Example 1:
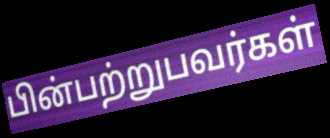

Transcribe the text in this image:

பின்பற்றுபவர்கள்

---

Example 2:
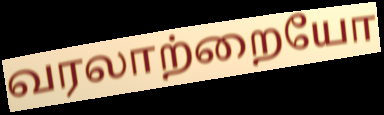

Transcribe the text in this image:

வரலாற்றையோ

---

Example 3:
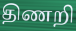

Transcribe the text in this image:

திணறி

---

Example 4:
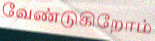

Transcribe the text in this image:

வேண்டுகிறோம்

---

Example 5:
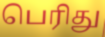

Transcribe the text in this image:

பெரிது